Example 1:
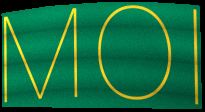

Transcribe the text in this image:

MOI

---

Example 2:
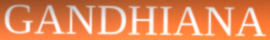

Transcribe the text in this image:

GANDHIANA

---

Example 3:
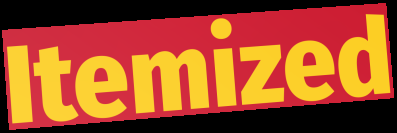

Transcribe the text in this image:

Itemized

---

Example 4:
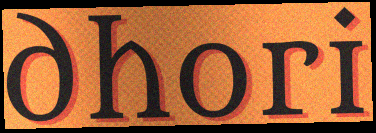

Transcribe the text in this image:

dhori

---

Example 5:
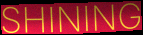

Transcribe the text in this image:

SHINING